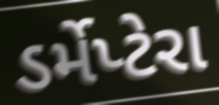
ડર્મેપ્ટેરા